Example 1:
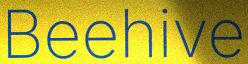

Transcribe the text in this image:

Beehive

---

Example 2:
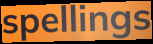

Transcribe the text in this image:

spellings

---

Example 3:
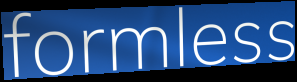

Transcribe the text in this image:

formless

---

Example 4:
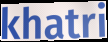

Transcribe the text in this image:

khatri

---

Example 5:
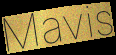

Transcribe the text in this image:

Mavis